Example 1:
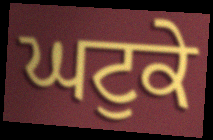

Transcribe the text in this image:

ਘਟੁਕੇ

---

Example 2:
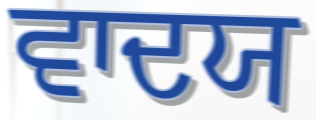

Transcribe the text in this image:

ਵਾਦਯ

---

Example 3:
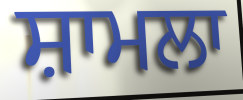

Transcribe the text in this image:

ਸ਼ਾਮਲਾ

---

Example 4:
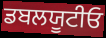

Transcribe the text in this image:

ਡਬਲਯੂਟੀਓ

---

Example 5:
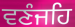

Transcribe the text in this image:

ਵਣੰਜਹਿ